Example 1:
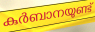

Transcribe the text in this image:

കുർബാനയുണ്ട്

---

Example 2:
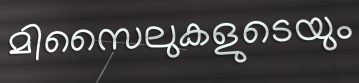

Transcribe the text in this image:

മിസൈലുകളുടെയും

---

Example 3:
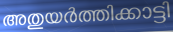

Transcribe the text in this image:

അതുയർത്തിക്കാട്ടി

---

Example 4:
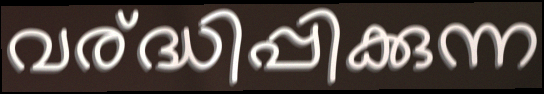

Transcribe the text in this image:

വര്ദ്ധിപ്പിക്കുന്ന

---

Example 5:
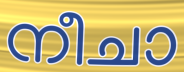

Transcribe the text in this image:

നീചാ